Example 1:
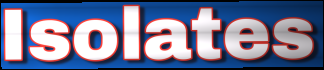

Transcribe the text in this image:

Isolates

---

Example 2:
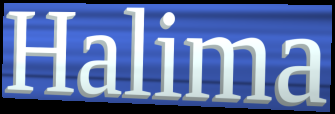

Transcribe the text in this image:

Halima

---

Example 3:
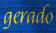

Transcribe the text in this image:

gerado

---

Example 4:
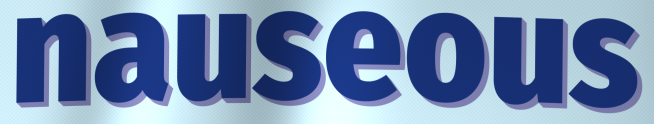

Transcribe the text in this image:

nauseous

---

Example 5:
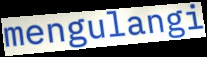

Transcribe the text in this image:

mengulangi